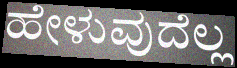
ಹೇಳುವುದೆಲ್ಲ